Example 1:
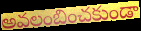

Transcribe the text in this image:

అవలంబించకుండా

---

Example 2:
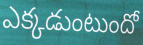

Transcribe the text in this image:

ఎక్కడుంటుందో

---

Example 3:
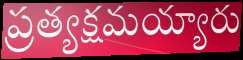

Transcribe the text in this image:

ప్రత్యక్షమయ్యారు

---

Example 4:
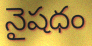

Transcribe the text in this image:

నైషధం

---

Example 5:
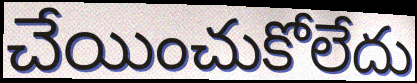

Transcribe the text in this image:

చేయించుకోలేదు